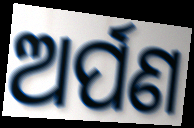
ଅର୍ପଣ